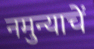
नमुन्याचें